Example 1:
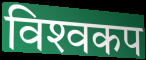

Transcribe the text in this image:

विश्‍वकप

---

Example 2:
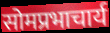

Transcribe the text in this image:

सोमप्रभाचार्य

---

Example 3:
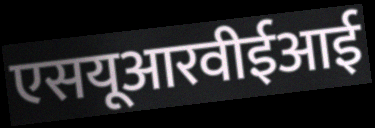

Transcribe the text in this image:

एसयूआरवीईआई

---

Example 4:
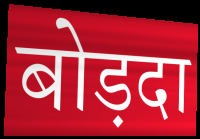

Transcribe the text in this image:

बोड़दा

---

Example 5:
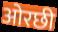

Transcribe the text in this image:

ओरछी